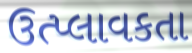
ઉત્પ્લાવકતા